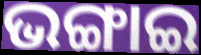
ଭଙ୍ଗାଇ